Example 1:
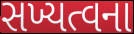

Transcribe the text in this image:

સખ્યત્વના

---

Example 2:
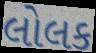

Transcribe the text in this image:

લોલક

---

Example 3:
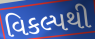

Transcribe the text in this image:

વિકલ્પથી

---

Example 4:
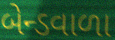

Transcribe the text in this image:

બેન્ડવાળા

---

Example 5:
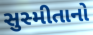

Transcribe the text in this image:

સુસ્મીતાનો